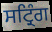
ਸਟ੍ਰਿੰਗ